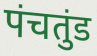
पंचतुंड